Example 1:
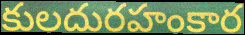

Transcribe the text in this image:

కులదురహంకార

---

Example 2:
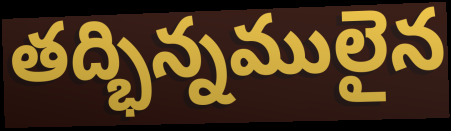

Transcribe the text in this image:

తద్భిన్నములైన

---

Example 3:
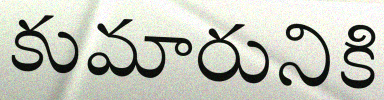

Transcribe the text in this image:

కుమారునికి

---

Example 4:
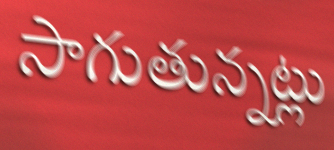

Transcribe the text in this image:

సాగుతున్నట్లు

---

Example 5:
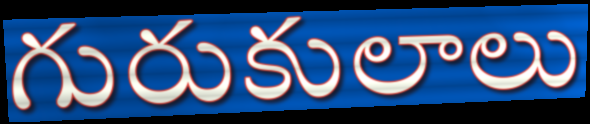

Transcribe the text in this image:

గురుకులాలు